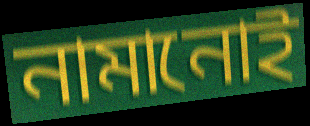
নামানোই